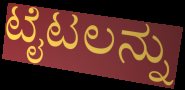
ಟೈಟಲನ್ನು